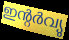
ഇന്റർവ്യു